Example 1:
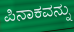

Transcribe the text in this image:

ಪಿನಾಕವನ್ನು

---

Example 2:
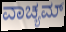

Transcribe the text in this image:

ವಾಚ್ಯಮ್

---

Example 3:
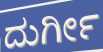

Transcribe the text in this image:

ದುರ್ಗೀ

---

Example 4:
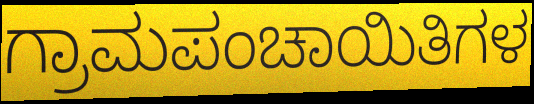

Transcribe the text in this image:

ಗ್ರಾಮಪಂಚಾಯಿತಿಗಳ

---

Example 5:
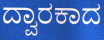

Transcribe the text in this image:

ದ್ವಾರಕಾದ